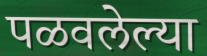
पळवलेल्या